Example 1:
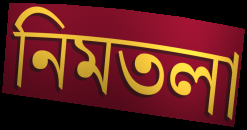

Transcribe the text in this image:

নিমতলা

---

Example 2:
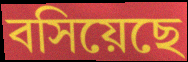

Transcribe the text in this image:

বসিয়েছে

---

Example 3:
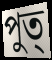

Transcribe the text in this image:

পুত্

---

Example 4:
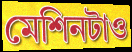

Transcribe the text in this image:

মেশিনটাও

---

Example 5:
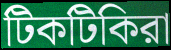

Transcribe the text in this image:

টিকটিকিরা